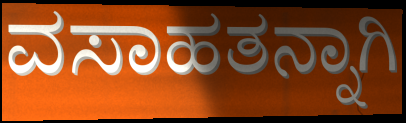
ವಸಾಹತನ್ನಾಗಿ